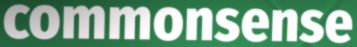
commonsense